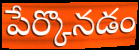
పేర్కొనడం